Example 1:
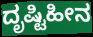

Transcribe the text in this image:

ದೃಷ್ಟಿಹೀನ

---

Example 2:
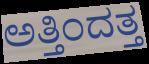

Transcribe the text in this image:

ಅತ್ತಿಂದತ್ತ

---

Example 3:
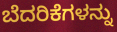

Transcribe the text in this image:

ಬೆದರಿಕೆಗಳನ್ನು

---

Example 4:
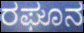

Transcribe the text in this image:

ರಘೂನ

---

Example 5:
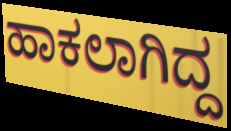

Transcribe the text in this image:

ಹಾಕಲಾಗಿದ್ದ